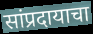
सांप्रदायाचा